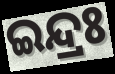
ଇନ୍ଦ୍ରଃ